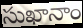
సుఖానాం